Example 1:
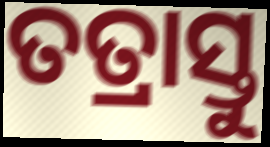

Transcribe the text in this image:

ତତ୍ରାସ୍ତୁ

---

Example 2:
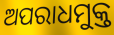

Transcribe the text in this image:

ଅପରାଧମୁକ୍ତ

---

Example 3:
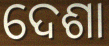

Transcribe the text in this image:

ଦେଶା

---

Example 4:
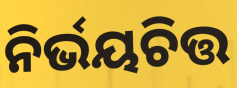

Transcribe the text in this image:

ନିର୍ଭୟଚିତ୍ତ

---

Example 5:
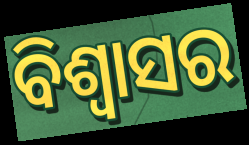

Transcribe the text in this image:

ବିଶ୍ବାସର